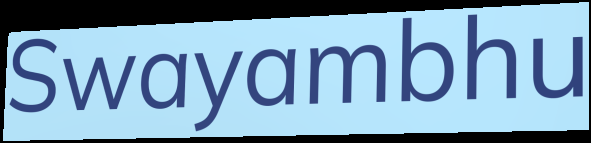
Swayambhu